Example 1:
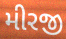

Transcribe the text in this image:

મીરજી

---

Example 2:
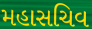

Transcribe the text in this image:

મહાસચિવ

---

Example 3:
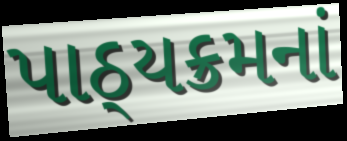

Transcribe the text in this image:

પાઠ્યક્રમનાં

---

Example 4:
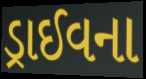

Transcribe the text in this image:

ડ્રાઈવના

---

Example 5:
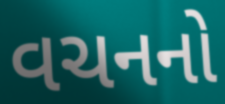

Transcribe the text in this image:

વચનનો